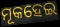
ମୂକହେଇ